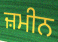
ਜ਼ਮੀਨ